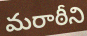
మరాఠీని